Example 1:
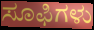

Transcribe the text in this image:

ಸೂಫಿಗಳು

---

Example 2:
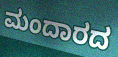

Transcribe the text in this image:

ಮಂದಾರದ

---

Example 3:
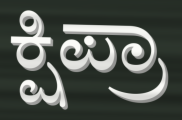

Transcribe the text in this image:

ಕ್ಷಿಪ್ರಾ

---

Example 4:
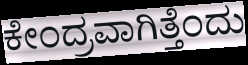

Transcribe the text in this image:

ಕೇಂದ್ರವಾಗಿತ್ತೆಂದು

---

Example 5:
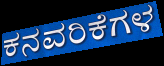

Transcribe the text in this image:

ಕನವರಿಕೆಗಳ